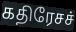
கதிரேசச்